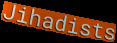
Jihadists